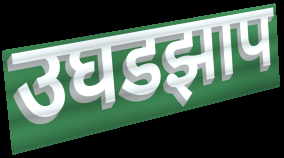
उघडझाप